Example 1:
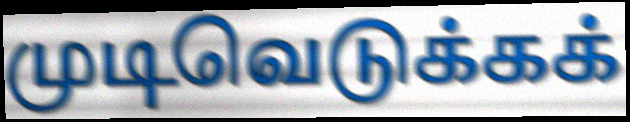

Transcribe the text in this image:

முடிவெடுக்கக்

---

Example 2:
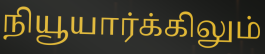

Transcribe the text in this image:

நியூயார்க்கிலும்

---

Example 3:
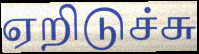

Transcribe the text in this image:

ஏறிடுச்சு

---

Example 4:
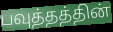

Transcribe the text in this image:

பவுத்தத்தின்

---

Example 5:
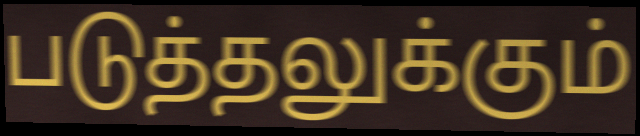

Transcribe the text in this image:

படுத்தலுக்கும்